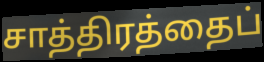
சாத்திரத்தைப்